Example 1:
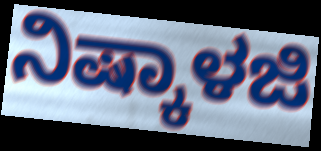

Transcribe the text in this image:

ನಿಷ್ಕಾಳಜಿ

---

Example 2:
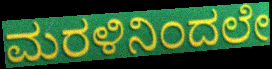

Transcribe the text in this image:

ಮರಳಿನಿಂದಲೇ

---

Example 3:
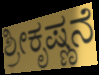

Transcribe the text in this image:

ಶ್ರೀಕೃಷ್ಣನೆ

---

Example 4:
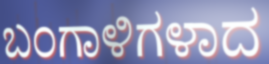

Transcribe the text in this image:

ಬಂಗಾಳಿಗಳಾದ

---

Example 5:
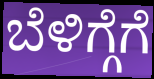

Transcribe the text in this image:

ಬೆಳಿಗ್ಗೆಗೆ